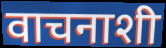
वाचनाशी